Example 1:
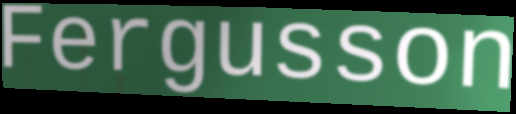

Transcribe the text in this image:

Fergusson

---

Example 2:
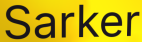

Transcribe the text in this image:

Sarker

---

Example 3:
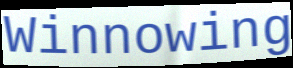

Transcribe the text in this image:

Winnowing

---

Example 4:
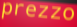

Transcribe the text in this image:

prezzo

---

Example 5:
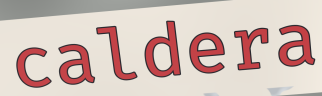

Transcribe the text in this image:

caldera